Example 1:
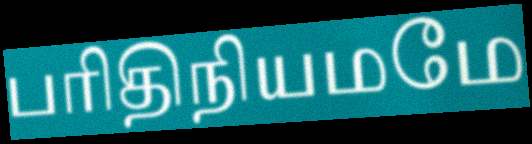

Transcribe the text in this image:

பரிதிநியமமே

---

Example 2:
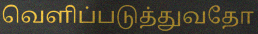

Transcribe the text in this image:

வெளிப்படுத்துவதோ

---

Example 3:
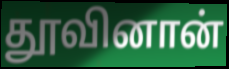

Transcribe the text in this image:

தூவினான்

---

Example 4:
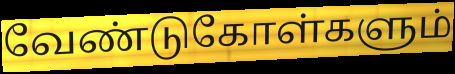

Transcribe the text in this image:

வேண்டுகோள்களும்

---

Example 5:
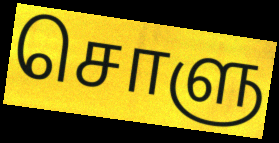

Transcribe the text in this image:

சொளு